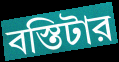
বস্তিটার